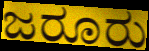
ಜರೂರು